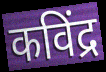
कविंद्र